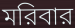
মরিবার